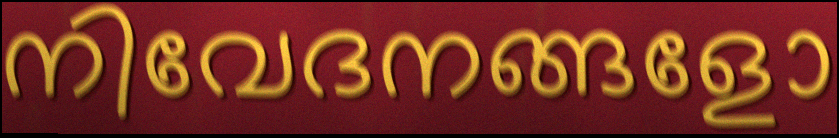
നിവേദനങ്ങളോ